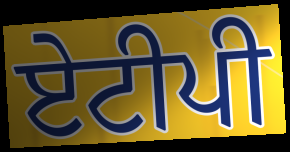
ਏਟੀਪੀ